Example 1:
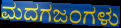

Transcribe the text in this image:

ಮದಗಜಂಗಳು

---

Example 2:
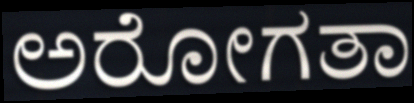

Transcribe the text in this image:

ಅರೋಗತಾ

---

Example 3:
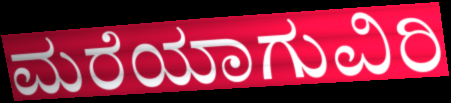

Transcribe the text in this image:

ಮರೆಯಾಗುವಿರಿ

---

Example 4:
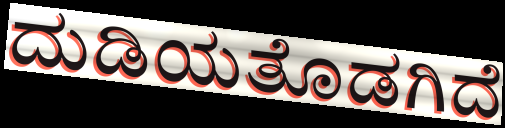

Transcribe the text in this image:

ದುಡಿಯತೊಡಗಿದೆ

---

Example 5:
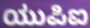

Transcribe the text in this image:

ಯುಪಿಐ